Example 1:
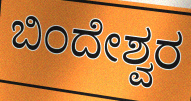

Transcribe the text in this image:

ಬಿಂದೇಶ್ವರ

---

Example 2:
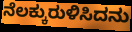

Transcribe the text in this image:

ನೆಲಕ್ಕುರುಳಿಸಿದನು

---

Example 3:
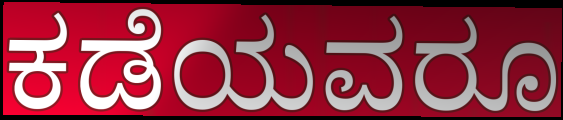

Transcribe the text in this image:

ಕಡೆಯವರೂ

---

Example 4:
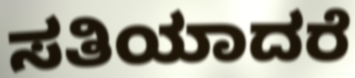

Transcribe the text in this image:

ಸತಿಯಾದರೆ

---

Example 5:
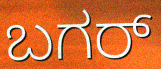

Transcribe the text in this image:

ಬಗರ್